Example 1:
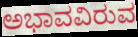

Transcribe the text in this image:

ಅಭಾವವಿರುವ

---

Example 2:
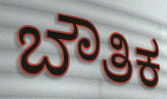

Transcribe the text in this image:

ಬೌತಿಕ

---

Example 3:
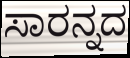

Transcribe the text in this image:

ಸಾರನ್ನದ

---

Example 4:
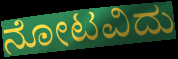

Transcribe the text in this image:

ನೋಟವಿದು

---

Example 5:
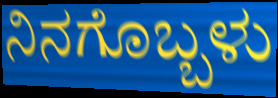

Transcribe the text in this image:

ನಿನಗೊಬ್ಬಳು